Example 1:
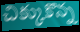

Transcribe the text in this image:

చిక్కుకొన్న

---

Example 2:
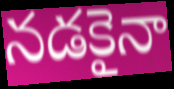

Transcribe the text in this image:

నడకైనా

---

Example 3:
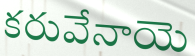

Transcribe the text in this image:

కరువేనాయె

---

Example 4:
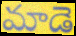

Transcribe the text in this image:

మాడె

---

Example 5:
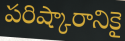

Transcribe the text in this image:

పరిష్కారానికై